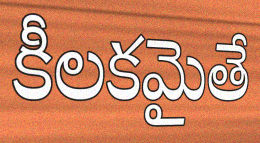
కీలకమైతే